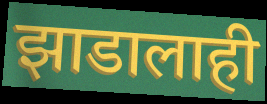
झाडालाही